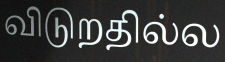
விடுறதில்ல